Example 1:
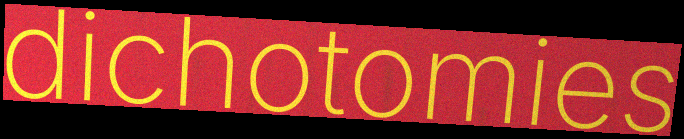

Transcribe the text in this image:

dichotomies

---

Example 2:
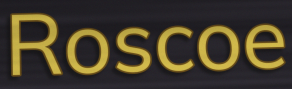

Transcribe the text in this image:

Roscoe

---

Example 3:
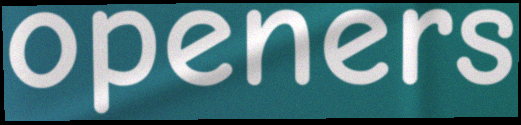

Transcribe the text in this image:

openers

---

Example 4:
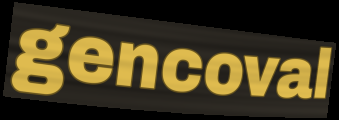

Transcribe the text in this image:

gencoval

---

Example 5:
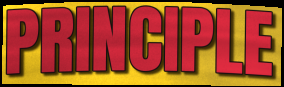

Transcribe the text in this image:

PRINCIPLE